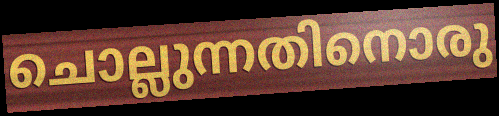
ചൊല്ലുന്നതിനൊരു